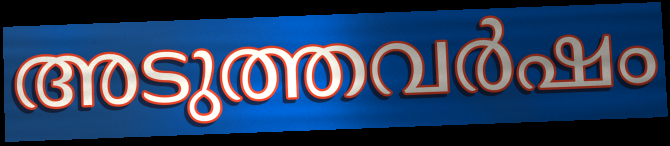
അടുത്തവർഷം